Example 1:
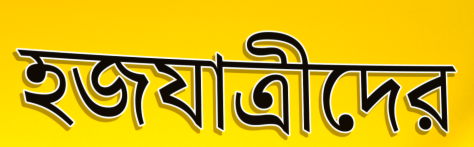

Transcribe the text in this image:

হজযাত্রীদের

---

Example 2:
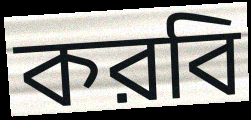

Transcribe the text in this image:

করবি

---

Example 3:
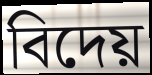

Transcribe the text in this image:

বিদেয়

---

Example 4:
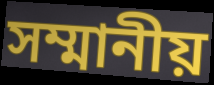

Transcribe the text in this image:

সম্মানীয়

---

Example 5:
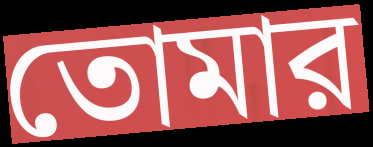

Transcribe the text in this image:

তোমার